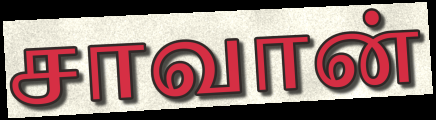
சாவான்